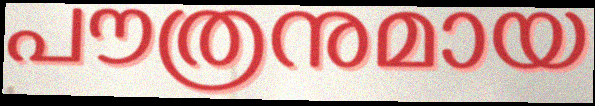
പൗത്രനുമായ